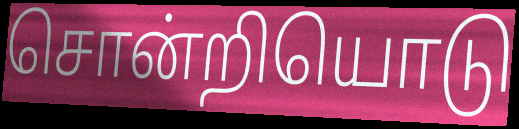
சொன்றியொடு